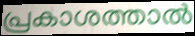
പ്രകാശത്താൽ